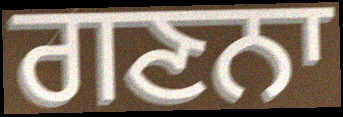
ਗਣਨਾ